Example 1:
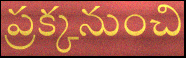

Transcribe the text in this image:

ప్రక్కనుంచి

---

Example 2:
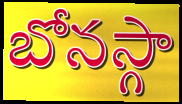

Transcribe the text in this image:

బోనస్గా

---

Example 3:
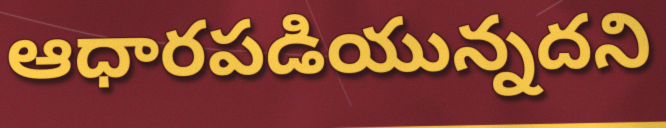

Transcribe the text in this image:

ఆధారపడియున్నదని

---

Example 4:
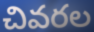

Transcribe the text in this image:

చివరల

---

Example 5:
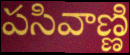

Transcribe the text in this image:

పసివాణ్ణి